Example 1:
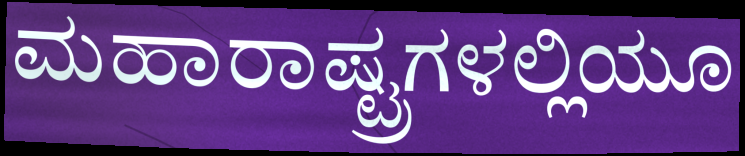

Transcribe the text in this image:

ಮಹಾರಾಷ್ಟ್ರಗಳಲ್ಲಿಯೂ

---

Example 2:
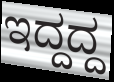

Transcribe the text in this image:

ಇದ್ದದ್ದ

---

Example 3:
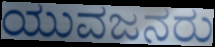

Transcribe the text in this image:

ಯುವಜನರು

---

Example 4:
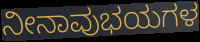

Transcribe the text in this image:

ನೀನಾವುಭಯಗಳ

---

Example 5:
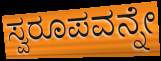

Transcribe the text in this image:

ಸ್ವರೂಪವನ್ನೇ